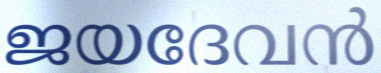
ജയദേവൻ